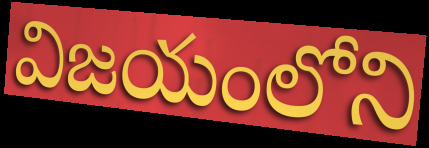
విజయంలోని